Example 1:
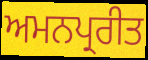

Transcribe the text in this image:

ਅਮਨਪ੍ਰਰੀਤ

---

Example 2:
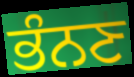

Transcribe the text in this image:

ਭੰਨਣ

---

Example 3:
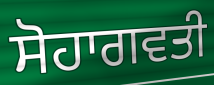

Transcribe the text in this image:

ਸੋਹਾਗਵਤੀ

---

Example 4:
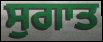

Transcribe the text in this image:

ਸੁਗਾਤ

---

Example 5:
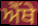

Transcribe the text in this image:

ਐੱਥੇ